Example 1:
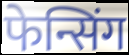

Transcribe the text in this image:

फेन्सिंग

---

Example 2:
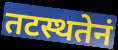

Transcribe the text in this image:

तटस्थतेनं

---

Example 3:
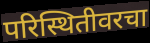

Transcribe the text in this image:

परिस्थितीवरचा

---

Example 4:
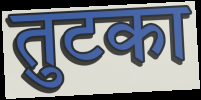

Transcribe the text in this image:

तुटका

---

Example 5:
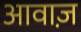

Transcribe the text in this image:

आवाज़